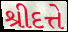
શ્રીદત્તે